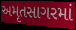
અમૃતસાગરમાં